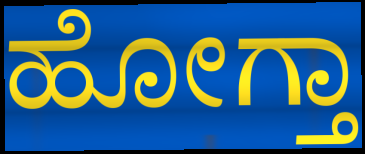
ಹೋಗ್ತಾ